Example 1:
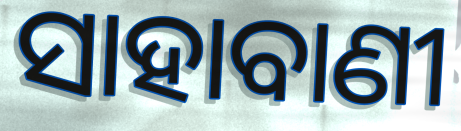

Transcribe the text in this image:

ସାହାବାଣୀ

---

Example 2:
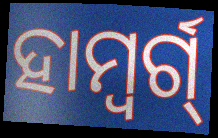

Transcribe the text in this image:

ହାମ୍ବର୍ଗ୍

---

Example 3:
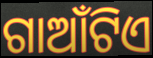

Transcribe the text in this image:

ଗାଆଁଟିଏ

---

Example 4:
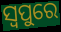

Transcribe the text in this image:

ସ୍ୱପୁରେ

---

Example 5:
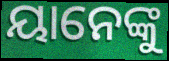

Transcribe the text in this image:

ୟାନେଙ୍କୁ